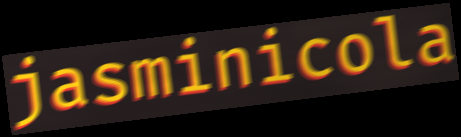
jasminicola